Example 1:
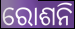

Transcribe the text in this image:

ରୋଶନି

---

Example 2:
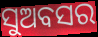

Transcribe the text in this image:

ସୁଅବସର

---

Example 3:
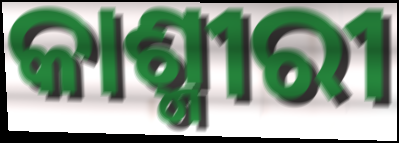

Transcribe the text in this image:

କାଶ୍ମୀରୀ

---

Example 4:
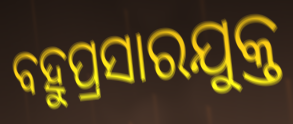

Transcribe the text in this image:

ବହୁପ୍ରସାରଯୁକ୍ତ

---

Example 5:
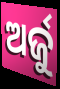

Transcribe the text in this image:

ଅର୍ଜୁ